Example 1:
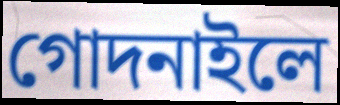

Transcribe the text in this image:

গোদনাইলে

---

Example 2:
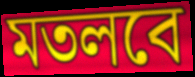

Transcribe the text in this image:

মতলবে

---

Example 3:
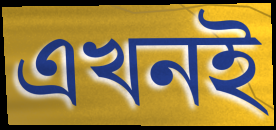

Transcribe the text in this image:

এখনই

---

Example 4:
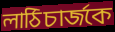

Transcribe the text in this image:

লাঠিচার্জকে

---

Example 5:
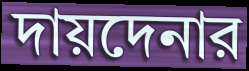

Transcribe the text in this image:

দায়দেনার